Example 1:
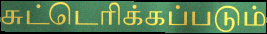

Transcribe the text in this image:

சுட்டெரிக்கப்படும்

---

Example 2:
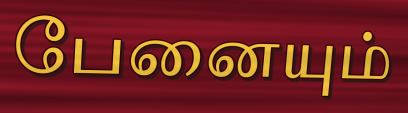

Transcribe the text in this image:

பேனையும்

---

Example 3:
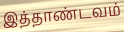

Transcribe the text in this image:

இத்தாண்டவம்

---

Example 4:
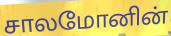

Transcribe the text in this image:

சாலமோனின்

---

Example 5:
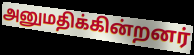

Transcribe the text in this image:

அனுமதிக்கின்றனர்